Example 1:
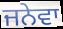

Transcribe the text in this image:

ਜਨੇਵਾ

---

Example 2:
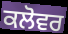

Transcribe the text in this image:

ਕਲੋਵਰ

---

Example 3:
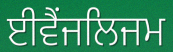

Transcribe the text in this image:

ਈਵੈਂਜਲਿਜਮ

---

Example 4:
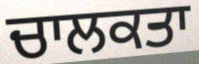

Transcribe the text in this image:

ਚਾਲਕਤਾ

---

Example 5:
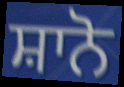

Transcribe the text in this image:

ਸ਼ਾਨੋ